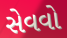
સેવવો